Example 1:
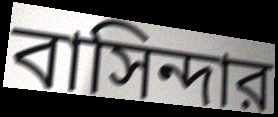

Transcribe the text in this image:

বাসিন্দার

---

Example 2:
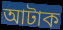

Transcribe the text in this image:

আটাক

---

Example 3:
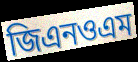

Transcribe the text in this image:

জিএনওএম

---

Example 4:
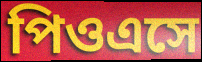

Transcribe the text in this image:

পিওএসে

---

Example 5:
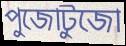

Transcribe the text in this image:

পুজোটুজো